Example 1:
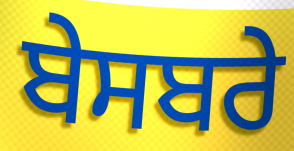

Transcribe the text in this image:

ਬੇਸਬਰੇ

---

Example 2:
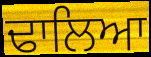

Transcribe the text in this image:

ਢਾਲਿਆ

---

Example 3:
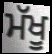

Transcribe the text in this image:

ਮੱਖੂ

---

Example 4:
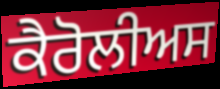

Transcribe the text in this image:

ਕੈਰੋਲੀਅਸ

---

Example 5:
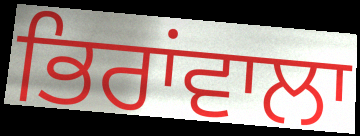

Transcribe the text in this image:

ਭਿਰਾਂਵਾਲਾ